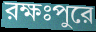
রক্ষঃপুরে